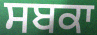
ਸਬਕਾ